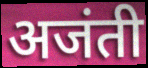
अजंती